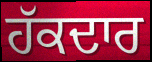
ਹੱਕਦਾਰ